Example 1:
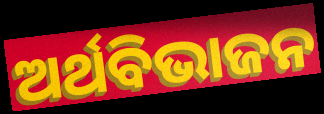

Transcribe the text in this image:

ଅର୍ଥବିଭାଜନ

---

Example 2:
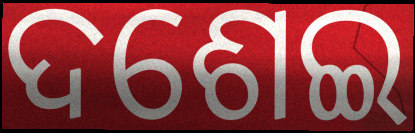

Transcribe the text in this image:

ଦଶେଇ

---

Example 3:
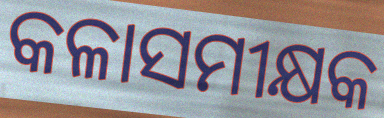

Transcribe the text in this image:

କଳାସମୀକ୍ଷକ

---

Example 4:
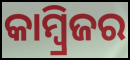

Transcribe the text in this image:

କାମ୍ବ୍ରିଜର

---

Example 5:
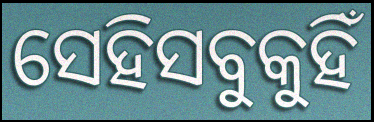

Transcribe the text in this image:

ସେହିସବୁକୁହିଁ